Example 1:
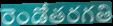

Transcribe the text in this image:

రెండోతరగతి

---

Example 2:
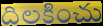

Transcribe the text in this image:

దిలకించు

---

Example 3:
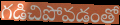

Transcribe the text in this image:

గడిచిపోవడంతో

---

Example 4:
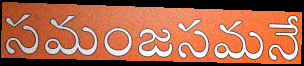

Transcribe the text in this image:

సమంజసమనే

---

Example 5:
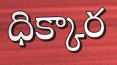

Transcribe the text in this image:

ధిక్కార